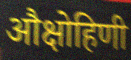
औक्षोहिणी